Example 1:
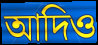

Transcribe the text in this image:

আদিও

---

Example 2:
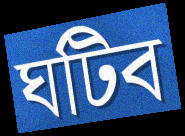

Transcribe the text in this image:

ঘটিব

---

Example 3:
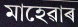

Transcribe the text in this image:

মাহেৱাৰ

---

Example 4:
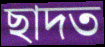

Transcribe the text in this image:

ছাদত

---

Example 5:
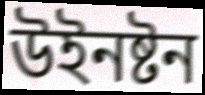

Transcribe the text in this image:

উইনষ্টন